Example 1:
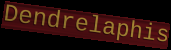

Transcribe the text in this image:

Dendrelaphis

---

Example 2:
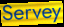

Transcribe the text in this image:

Servey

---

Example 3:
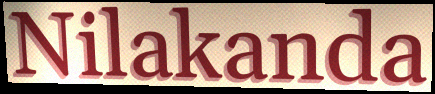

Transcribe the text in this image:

Nilakanda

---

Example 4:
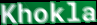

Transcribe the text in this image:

Khokla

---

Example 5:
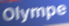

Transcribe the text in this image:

Olympe